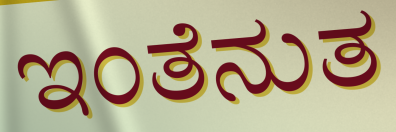
ಇಂತೆನುತ